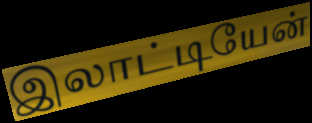
இலாட்டியேன்